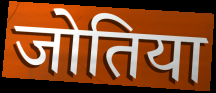
जोतिया